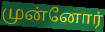
முன்னோர்